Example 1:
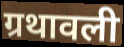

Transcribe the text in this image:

ग्रथावली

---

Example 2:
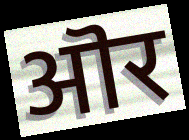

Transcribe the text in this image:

ऒर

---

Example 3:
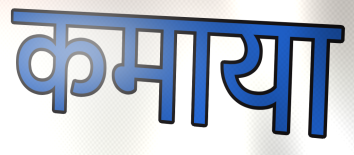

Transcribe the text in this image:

कमाया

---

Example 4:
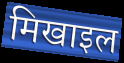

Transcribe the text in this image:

मिखाइल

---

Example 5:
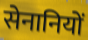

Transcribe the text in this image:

सेनानियों